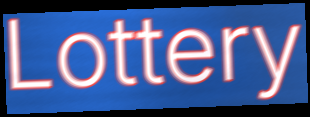
Lottery